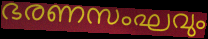
ഭരണസംഘവും